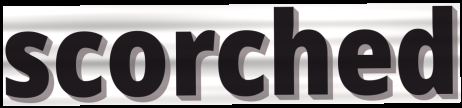
scorched